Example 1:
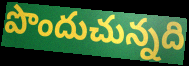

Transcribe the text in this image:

పొందుచున్నది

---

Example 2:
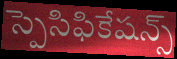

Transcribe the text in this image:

స్పెసిఫికేషన్స్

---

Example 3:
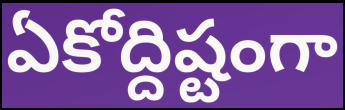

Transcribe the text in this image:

ఏకోద్దిష్టంగా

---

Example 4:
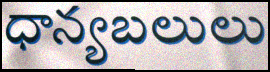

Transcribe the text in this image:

ధాన్యబలులు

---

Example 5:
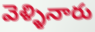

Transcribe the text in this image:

వెళ్ళినారు